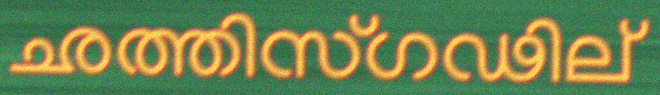
ഛത്തിസ്ഗഢില്